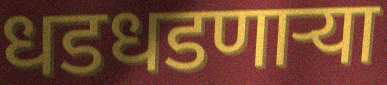
धडधडणाऱ्या